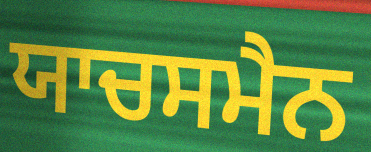
ਯਾਚਸਮੈਨ